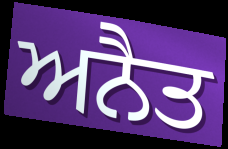
ਅਨੈਤ